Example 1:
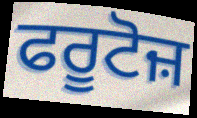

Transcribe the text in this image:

ਫਰੂਟੋਜ਼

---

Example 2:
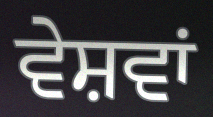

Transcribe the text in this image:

ਵੇਸ਼ਵਾਂ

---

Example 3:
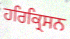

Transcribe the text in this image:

ਹਰਿਕ੍ਰਿਸਨ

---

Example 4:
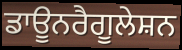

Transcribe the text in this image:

ਡਾਊਨਰੈਗੂਲੇਸ਼ਨ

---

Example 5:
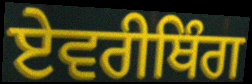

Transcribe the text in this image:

ਏਵਰੀਥਿੰਗ